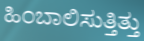
ಹಿಂಬಾಲಿಸುತ್ತಿತ್ತು